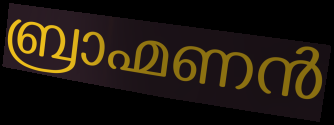
ബ്രാഹ്മണൻ